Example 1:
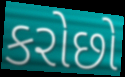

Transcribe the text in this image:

કરોછો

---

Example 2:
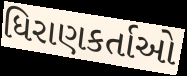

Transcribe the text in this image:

ધિરાણકર્તાઓ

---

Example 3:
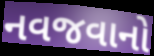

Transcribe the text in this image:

નવજવાનો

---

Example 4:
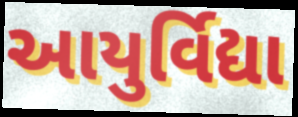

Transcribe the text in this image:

આયુર્વિદ્યા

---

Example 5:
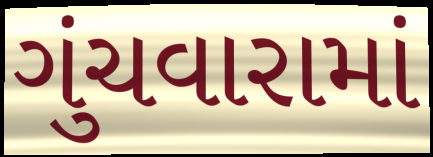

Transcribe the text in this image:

ગુંચવારામાં